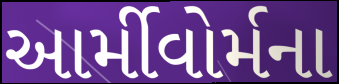
આર્મીવોર્મના